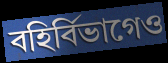
বহির্বিভাগেও